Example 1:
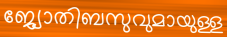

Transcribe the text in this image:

ജ്യോതിബസുവുമായുള്ള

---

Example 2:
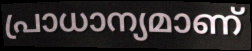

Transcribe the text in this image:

പ്രാധാന്യമാണ്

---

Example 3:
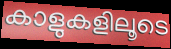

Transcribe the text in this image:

കാളുകളിലൂടെ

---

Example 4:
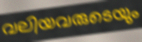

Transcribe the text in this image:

വലിയവരുടെയും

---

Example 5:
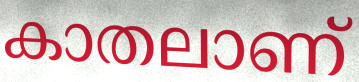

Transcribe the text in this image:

കാതലാണ്